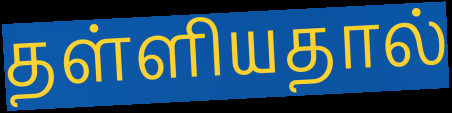
தள்ளியதால்